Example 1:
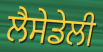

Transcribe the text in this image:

ਲੈਸੇਡੇਲੀ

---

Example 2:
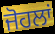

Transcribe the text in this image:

ਜੋਹਲਾਂ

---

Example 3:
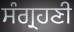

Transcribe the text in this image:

ਸੰਗ੍ਰਹਣੀ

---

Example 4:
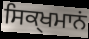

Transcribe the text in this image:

ਸਿਕ੍ਖਮਾਨਂ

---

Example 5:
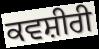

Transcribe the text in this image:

ਕਵਸ਼ੀਰੀ